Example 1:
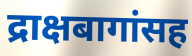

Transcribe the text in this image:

द्राक्षबागांसह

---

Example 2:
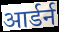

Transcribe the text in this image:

आर्डर्न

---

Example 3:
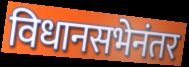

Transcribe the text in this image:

विधानसभेनंतर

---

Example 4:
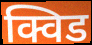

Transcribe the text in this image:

क्विड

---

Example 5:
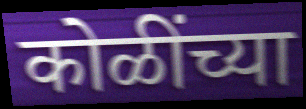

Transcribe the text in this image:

कोळींच्या